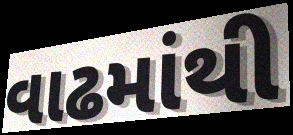
વાઢમાંથી